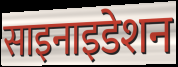
साइनाइडेशन